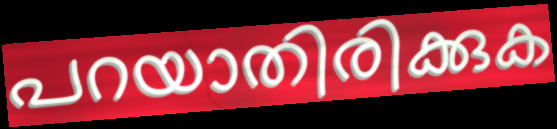
പറയാതിരിക്കുക